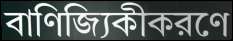
বাণিজ্যিকীকরণে